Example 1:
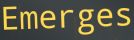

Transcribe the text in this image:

Emerges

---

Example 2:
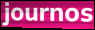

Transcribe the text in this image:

journos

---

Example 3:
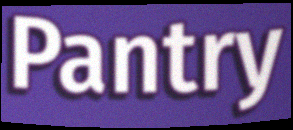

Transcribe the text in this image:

Pantry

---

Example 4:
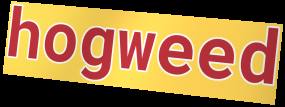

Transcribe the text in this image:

hogweed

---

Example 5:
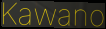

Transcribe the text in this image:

Kawano